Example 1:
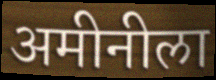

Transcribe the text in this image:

अमीनीला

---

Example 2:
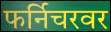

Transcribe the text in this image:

फर्निचरवर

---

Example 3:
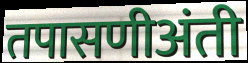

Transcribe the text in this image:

तपासणीअंती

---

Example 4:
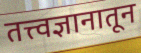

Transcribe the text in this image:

तत्त्वज्ञानातून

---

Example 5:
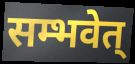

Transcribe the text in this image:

सम्भवेत्